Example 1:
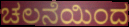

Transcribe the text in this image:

ಚಲನೆಯಿಂದ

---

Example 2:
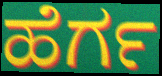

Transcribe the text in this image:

ಹೆರ್ಗ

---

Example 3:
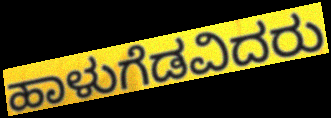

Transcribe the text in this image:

ಹಾಳುಗೆಡವಿದರು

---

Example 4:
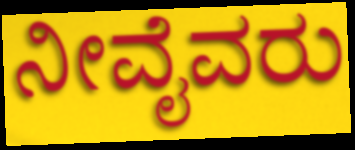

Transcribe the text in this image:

ನೀವೈವರು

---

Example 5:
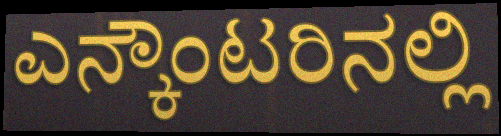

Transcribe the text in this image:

ಎನ್ಕೌಂಟರಿನಲ್ಲಿ